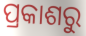
ପ୍ରକାଶରୁ